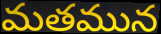
మతమున